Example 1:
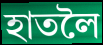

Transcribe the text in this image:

হাতলৈ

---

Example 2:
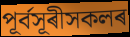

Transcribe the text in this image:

পূৰ্বসূৰীসকলৰ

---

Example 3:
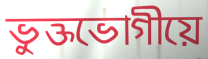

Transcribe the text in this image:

ভুক্তভোগীয়ে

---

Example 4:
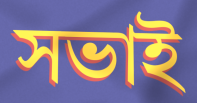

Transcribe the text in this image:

সভাই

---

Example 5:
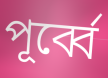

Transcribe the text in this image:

পূৰ্ব্বে